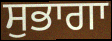
ਸੁਭਾਗਾ